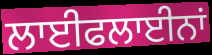
ਲਾਈਫਲਾਈਨਾਂ